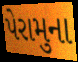
પેરામુના